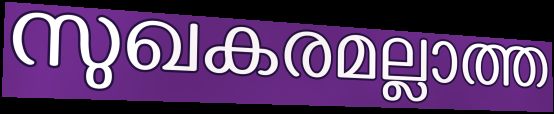
സുഖകരമല്ലാത്ത